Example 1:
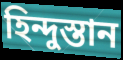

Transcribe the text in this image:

হিন্দুস্তান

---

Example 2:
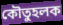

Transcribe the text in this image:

কৌতুহলক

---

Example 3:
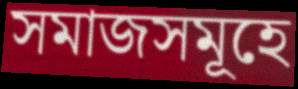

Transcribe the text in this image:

সমাজসমূহে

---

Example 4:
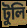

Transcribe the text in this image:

টুলি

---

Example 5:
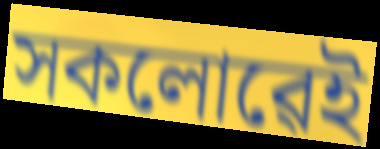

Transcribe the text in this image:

সকলোৱেই